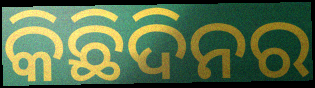
କିଛିଦିନର